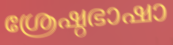
ശ്രേഷ്ഠഭാഷാ